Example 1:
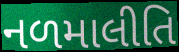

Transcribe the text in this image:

નળમાલીતિ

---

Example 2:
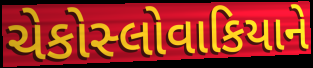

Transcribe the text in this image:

ચેકોસ્લોવાકિયાને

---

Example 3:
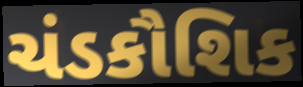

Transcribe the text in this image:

ચંડકૌશિક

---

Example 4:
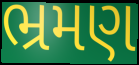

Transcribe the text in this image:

ભ્રમણ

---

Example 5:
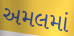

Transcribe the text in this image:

અમલમાં